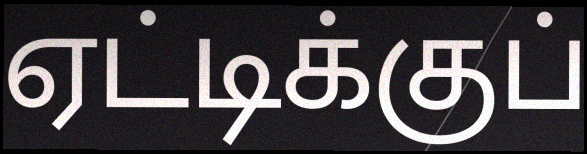
ஏட்டிக்குப்